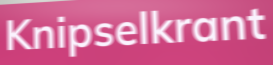
Knipselkrant